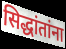
सिद्धांतांना